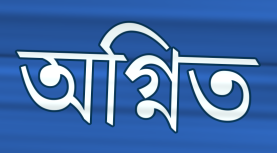
অগ্নিত